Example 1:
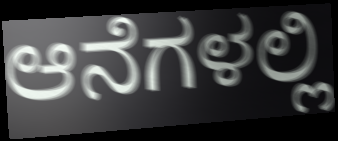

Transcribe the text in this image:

ಆನೆಗಳಲ್ಲಿ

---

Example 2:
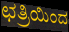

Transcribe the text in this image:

ಛತ್ರಿಯಿಂದ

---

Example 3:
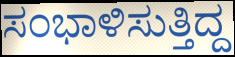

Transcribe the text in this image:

ಸಂಭಾಳಿಸುತ್ತಿದ್ದ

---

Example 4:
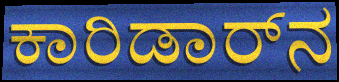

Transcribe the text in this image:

ಕಾರಿಡಾರ್‌ನ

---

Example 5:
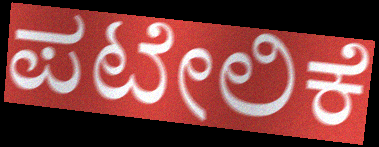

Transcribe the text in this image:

ಪಟೇಲಿಕೆ